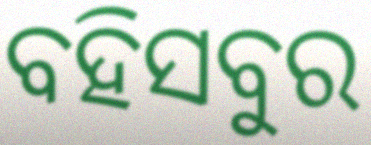
ବହିସବୁର